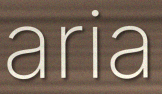
aria